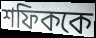
শফিককে